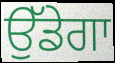
ਉੱਡੇਗਾ